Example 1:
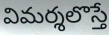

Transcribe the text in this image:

విమర్శలొస్తే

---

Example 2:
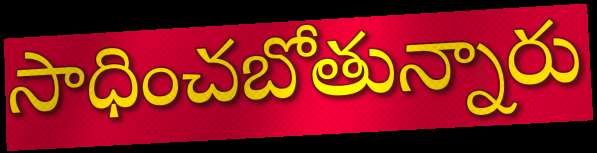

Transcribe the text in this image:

సాధించబోతున్నారు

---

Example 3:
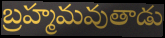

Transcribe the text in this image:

బ్రహ్మమవుతాడు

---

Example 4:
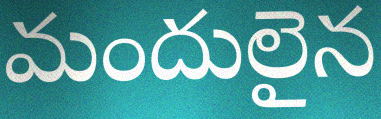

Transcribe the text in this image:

మందులైన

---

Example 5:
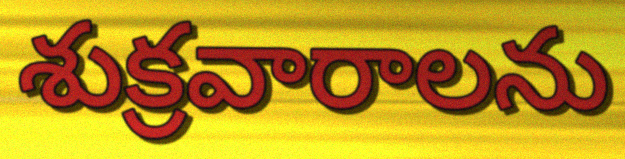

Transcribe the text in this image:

శుక్రవారాలను